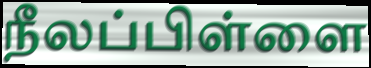
நீலப்பிள்ளை